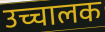
उच्चालक